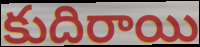
కుదిరాయి